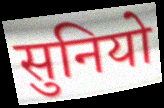
सुनियो